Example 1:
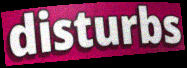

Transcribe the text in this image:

disturbs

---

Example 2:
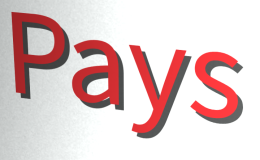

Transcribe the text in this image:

Pays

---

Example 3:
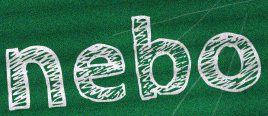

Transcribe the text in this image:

nebo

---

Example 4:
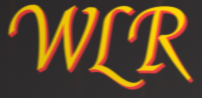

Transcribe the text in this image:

WLR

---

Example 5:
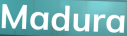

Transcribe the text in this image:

Madura